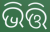
ଭିତ୍ତି